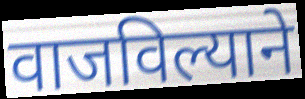
वाजविल्याने